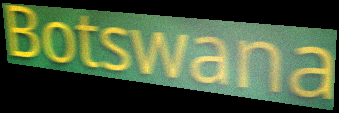
Botswana